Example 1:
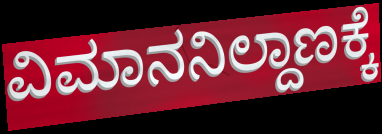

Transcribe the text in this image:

ವಿಮಾನನಿಲ್ದಾಣಕ್ಕೆ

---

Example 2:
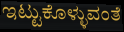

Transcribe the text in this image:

ಇಟ್ಟುಕೊಳ್ಳುವಂತೆ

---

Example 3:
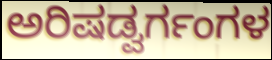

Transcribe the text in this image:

ಅರಿಷಡ್ವರ್ಗಂಗಳ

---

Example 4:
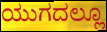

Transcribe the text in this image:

ಯುಗದಲ್ಲೂ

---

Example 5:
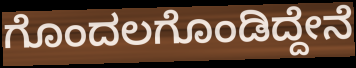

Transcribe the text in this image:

ಗೊಂದಲಗೊಂಡಿದ್ದೇನೆ